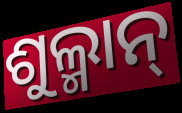
ଶୁଲ୍ମାନ୍